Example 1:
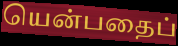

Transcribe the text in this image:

யென்பதைப்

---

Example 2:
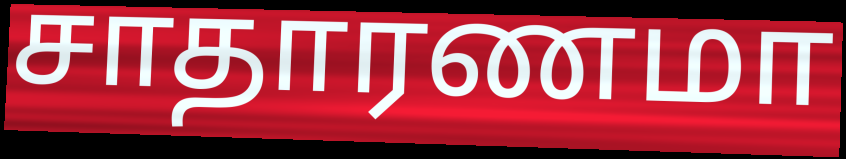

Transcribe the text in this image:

சாதாரணமா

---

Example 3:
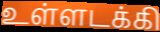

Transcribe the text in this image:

உள்ளடக்கி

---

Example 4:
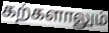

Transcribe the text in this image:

கற்களாலும்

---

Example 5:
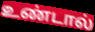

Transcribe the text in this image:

உண்டால்